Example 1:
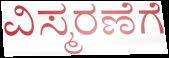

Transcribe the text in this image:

ವಿಸ್ಮರಣೆಗೆ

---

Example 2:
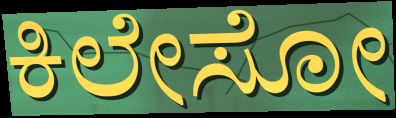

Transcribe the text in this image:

ಕಿಲೇಸೋ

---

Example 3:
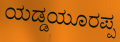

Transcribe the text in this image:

ಯಡ್ಡಯೂರಪ್ಪ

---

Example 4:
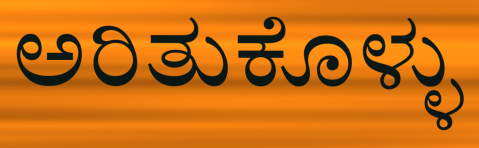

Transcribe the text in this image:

ಅರಿತುಕೊಳ್ಳು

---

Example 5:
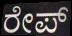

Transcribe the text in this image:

ರೇಪ್